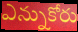
ఎన్నుకోరు